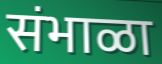
संभाळा